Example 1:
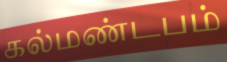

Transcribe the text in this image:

கல்மண்டபம்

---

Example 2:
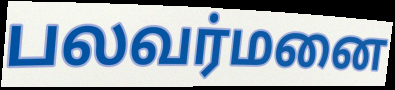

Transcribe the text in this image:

பலவர்மனை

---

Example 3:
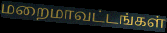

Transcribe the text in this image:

மறைமாவட்டங்கள்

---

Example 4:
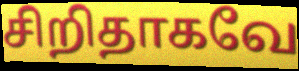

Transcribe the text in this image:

சிறிதாகவே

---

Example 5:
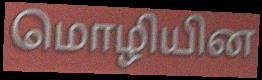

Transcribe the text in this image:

மொழியின